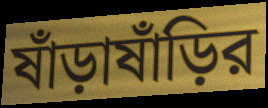
ষাঁড়াষাঁড়ির